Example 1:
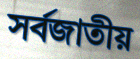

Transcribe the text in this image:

সর্বজাতীয়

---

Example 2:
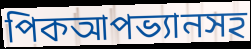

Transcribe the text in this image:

পিকআপভ্যানসহ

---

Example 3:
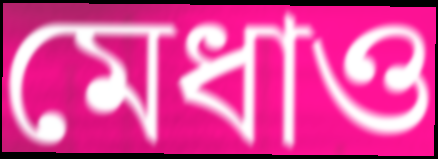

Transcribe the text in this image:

মেধাও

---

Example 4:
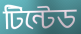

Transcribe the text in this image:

টিন্টেড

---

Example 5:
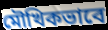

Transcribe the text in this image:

মৌখিকভাবে